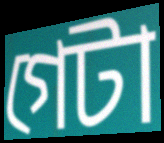
গেটা